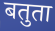
बतुता